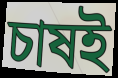
চাষই